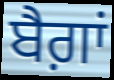
ਬੈਗ਼ਾਂ